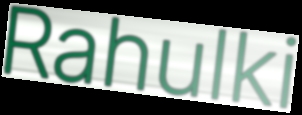
Rahulki